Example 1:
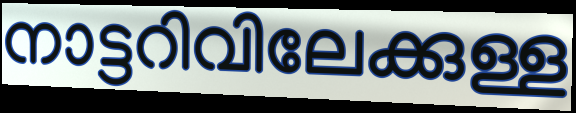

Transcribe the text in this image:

നാട്ടറിവിലേക്കുള്ള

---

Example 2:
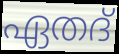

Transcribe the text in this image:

ഏതദ്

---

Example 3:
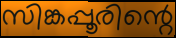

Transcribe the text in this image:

സിങ്കപ്പൂരിന്റെ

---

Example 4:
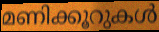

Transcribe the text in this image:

മണിക്കൂറുകൾ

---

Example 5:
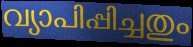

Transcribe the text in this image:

വ്യാപിപ്പിച്ചതും